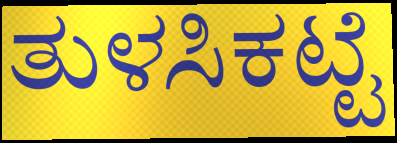
ತುಳಸಿಕಟ್ಟೆ